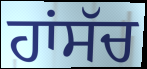
ਹਾਂਸੱਚ